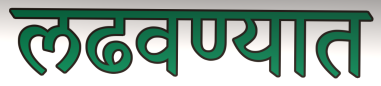
लढवण्यात